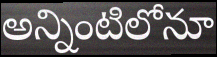
అన్నింటిలోనూ